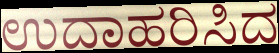
ಉದಾಹರಿಸಿದ